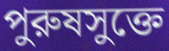
পুরুষসুক্তে